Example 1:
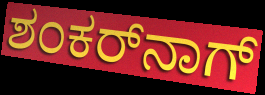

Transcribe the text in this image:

ಶಂಕರ್‌ನಾಗ್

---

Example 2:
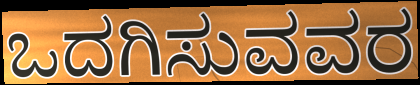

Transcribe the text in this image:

ಒದಗಿಸುವವರ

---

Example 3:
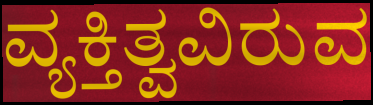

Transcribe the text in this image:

ವ್ಯಕ್ತಿತ್ವವಿರುವ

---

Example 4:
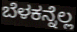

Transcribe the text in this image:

ಬೆಳಕನ್ನೆಲ್ಲ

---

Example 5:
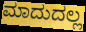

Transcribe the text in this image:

ಮಾದುದಲ್ಲ